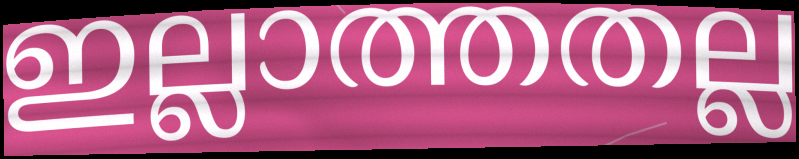
ഇല്ലാത്തതല്ല